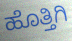
ಹೊತ್ತಿಗಿ